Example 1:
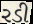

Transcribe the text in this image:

રડી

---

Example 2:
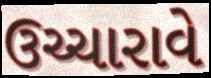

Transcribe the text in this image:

ઉચ્ચારાવે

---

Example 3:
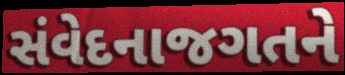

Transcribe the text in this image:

સંવેદનાજગતને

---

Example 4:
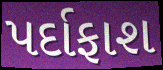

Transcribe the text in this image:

પર્દાફાશ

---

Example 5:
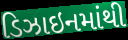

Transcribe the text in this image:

ડિઝાઇનમાંથી